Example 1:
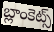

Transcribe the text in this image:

బ్లాంకెట్స్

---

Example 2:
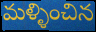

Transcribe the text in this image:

మళ్ళించిన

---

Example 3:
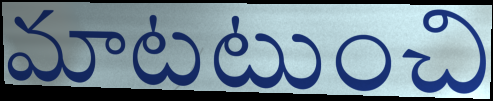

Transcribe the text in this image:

మాటటుంచి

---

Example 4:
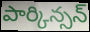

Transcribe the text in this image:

పార్కిన్సన్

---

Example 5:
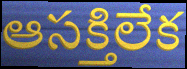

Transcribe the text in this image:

ఆసక్తిలేక